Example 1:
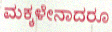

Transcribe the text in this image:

ಮಕ್ಕಳೇನಾದರೂ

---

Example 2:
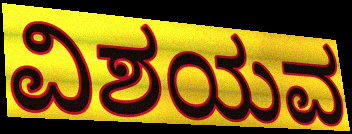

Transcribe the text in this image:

ವಿಶಯವ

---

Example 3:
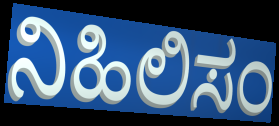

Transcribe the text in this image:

ನಿಹಿಲಿಸಂ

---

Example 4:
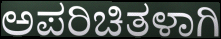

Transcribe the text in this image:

ಅಪರಿಚಿತಳಾಗಿ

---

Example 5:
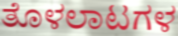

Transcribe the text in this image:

ತೊಳಲಾಟಗಳ